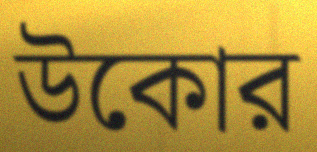
উকোর